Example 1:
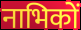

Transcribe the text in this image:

नाभिकों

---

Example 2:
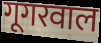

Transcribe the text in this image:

गूगरवाल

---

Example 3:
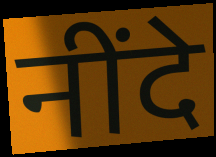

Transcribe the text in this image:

नींदे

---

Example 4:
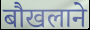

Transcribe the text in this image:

बौखलाने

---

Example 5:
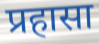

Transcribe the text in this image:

प्रहासा